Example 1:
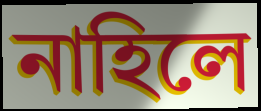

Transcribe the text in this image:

নাহিলে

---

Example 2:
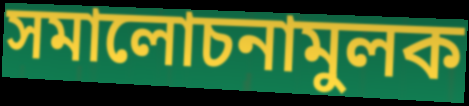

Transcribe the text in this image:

সমালোচনামুলক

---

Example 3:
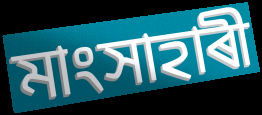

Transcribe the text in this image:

মাংসাহাৰী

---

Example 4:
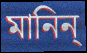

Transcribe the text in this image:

মানিন্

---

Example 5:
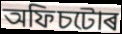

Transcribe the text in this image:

অফিচটোৰ